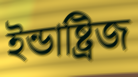
ইন্ডাষ্ট্রিজ